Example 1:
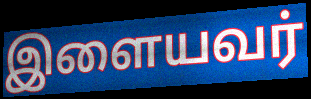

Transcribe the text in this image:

இளையவர்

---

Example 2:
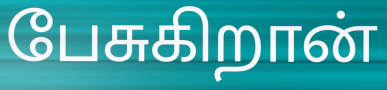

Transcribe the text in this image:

பேசுகிறான்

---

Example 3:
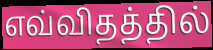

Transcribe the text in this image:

எவ்விதத்தில்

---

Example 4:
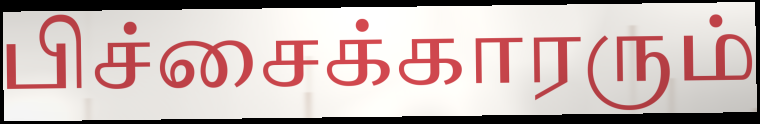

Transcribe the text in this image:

பிச்சைக்காரரும்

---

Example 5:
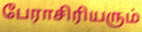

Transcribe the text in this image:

பேராசிரியரும்